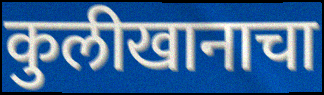
कुलीखानाचा